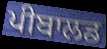
ਪੀਬਾਲਡ